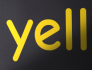
yell